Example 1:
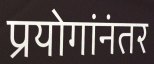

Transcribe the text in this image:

प्रयोगांनंतर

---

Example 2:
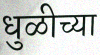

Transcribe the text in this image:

धुळीच्या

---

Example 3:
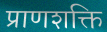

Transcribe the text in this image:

प्राणशक्ति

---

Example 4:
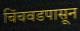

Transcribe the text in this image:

चिंचवडपासून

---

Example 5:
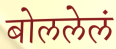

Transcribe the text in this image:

बोललेलं